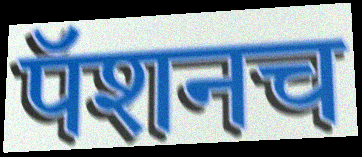
पॅशनच